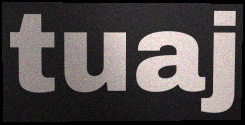
tuaj